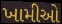
ખામીઓ